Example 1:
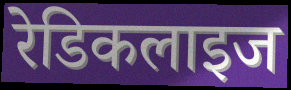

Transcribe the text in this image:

रेडिकलाइज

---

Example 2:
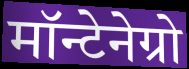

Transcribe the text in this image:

मॉन्टेनेग्रो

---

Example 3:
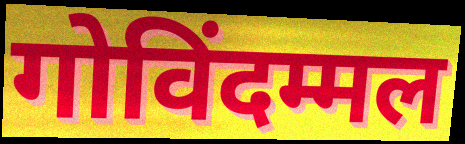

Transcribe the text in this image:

गोविंदम्मल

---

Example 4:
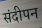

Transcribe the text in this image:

संदीपन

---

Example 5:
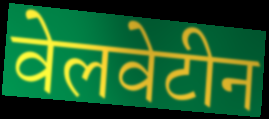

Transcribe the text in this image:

वेलवेटीन